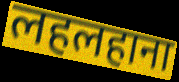
लहलहाना